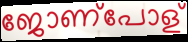
ജോണ്പോള്